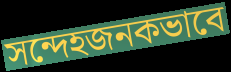
সন্দেহজনকভাবে